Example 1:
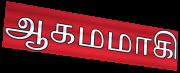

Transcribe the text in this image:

ஆகமமாகி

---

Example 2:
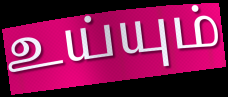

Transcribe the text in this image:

உய்யும்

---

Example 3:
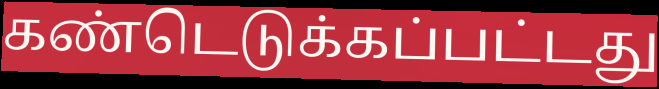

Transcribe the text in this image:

கண்டெடுக்கப்பட்டது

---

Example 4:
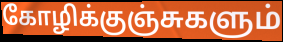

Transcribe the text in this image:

கோழிக்குஞ்சுகளும்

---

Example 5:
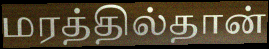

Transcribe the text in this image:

மரத்தில்தான்